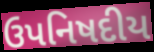
ઉપનિષદીય